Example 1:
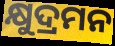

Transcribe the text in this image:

କ୍ଷୁଦ୍ରମନ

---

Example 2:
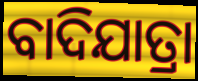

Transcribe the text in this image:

ବାଦିଯାତ୍ରା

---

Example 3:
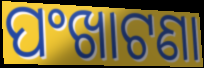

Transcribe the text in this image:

ପଂଖାଟଣା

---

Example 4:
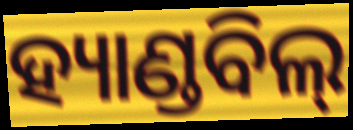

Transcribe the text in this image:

ହ୍ୟାଣ୍ଡବିଲ୍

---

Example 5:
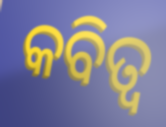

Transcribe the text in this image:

କବିତ୍ବ